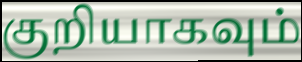
குறியாகவும்